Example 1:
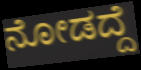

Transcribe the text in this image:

ನೋಡದ್ದೆ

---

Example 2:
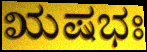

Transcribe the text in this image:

ಋಷಭಃ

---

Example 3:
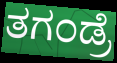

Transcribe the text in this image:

ತಗಂಡ್ರೆ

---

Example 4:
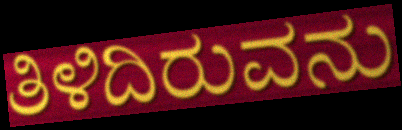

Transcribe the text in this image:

ತಿಳಿದಿರುವನು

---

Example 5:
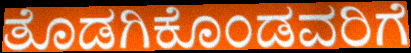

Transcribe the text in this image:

ತೊಡಗಿಕೊಂಡವರಿಗೆ